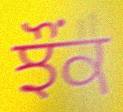
ਝੌਂਕ